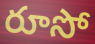
రూసో